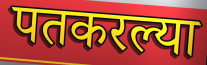
पतकरल्या